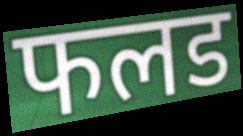
फलड